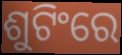
ଶୁଟିଂରେ